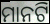
ମାନଟି